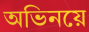
অভিনয়ে